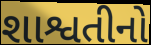
શાશ્વતીનો